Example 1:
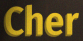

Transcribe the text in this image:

Cher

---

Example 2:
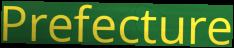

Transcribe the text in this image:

Prefecture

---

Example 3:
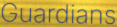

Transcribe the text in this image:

Guardians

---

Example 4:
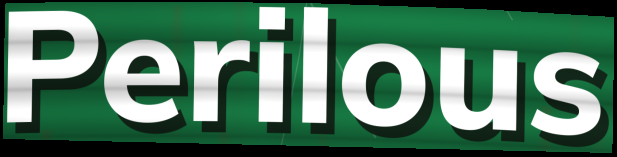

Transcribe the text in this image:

Perilous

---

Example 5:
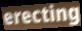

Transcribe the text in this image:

erecting